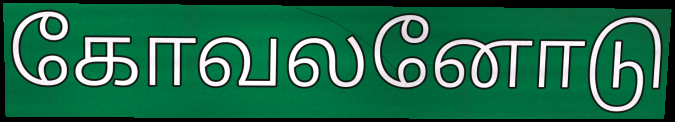
கோவலனோடு